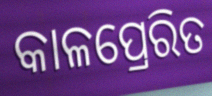
କାଳପ୍ରେରିତ